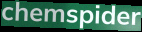
chemspider